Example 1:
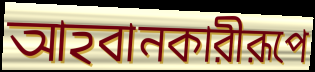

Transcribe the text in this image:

আহবানকারীরূপে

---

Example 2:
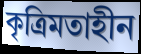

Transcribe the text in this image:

কৃত্রিমতাহীন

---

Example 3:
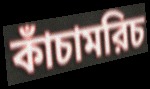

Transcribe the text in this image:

কাঁচামরিচ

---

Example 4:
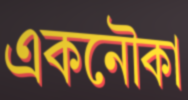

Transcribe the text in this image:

একনৌকা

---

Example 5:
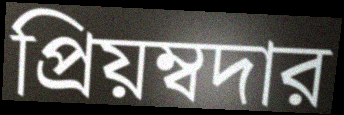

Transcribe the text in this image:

প্রিয়ম্বদার